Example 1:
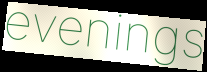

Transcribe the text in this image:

evenings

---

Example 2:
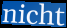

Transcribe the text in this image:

nicht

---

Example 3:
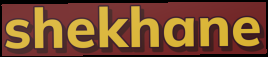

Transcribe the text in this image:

shekhane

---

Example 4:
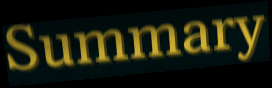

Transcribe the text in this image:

Summary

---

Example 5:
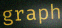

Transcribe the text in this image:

graph